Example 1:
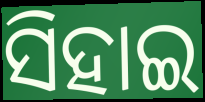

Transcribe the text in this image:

ସିହାଇ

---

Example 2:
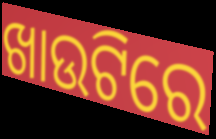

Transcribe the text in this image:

ଖାଉଟିରେ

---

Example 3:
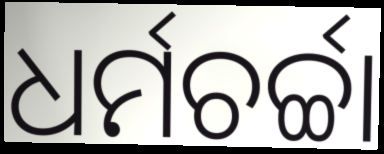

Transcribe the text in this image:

ଧର୍ମଚର୍ଚ୍ଚା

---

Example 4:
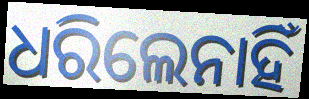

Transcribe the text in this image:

ଧରିଲେନାହିଁ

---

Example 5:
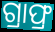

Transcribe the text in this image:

ଗ୍ରାଫ୍ର